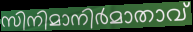
സിനിമാനിർമാതാവ്